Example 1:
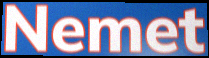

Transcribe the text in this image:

Nemet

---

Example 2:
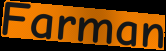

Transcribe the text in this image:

Farman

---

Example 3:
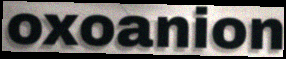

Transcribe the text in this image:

oxoanion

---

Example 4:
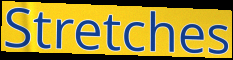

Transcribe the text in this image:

Stretches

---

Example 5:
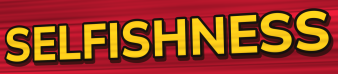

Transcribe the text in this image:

SELFISHNESS